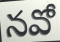
నవో